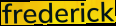
frederick